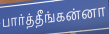
பார்த்தீங்கன்னா